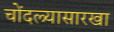
चोंदल्यासारखा